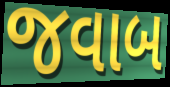
જવાબ